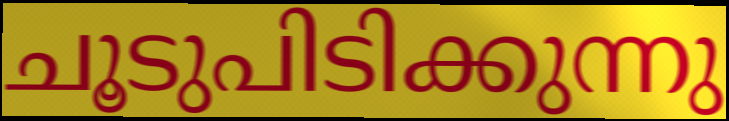
ചൂടുപിടിക്കുന്നു